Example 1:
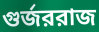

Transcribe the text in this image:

গুর্জররাজ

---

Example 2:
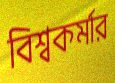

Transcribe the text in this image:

বিশ্বকর্মার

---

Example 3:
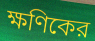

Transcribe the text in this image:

ক্ষণিকের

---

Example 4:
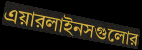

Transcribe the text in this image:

এয়ারলাইনসগুলোর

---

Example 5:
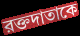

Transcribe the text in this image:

রক্তদাতাকে